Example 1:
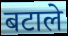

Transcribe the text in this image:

बटाले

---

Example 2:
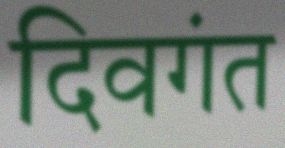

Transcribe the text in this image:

दिवगंत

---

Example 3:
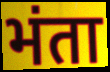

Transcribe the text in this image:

भंता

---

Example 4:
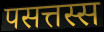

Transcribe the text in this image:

पसत्तस्स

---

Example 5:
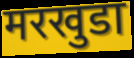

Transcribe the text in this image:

मरखुडा